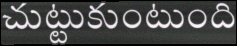
చుట్టుకుంటుంది